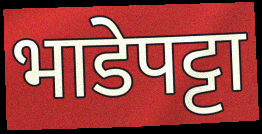
भाडेपट्टा